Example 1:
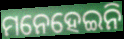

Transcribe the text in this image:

ମନେହେଇନି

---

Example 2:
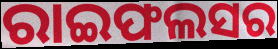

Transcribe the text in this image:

ରାଇଫଲସର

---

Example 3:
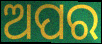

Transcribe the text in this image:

ଅପର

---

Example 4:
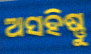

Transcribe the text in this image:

ଅସହିଷ୍ଣୁ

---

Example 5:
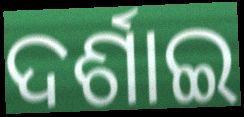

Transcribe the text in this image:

ଦର୍ଶାଇ